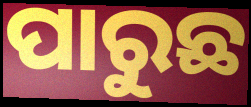
ପାରୁଛ